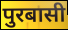
पुरबासी